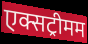
एक्सट्रीमम